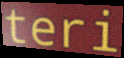
teri